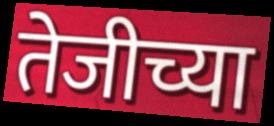
तेजीच्या